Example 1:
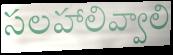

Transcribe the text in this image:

సలహాలివ్వాలి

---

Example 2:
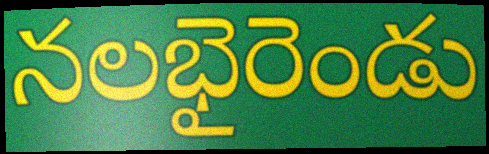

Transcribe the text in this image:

నలభైరెండు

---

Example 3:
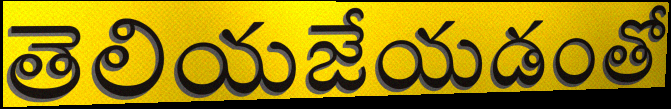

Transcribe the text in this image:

తెలియజేయడంతో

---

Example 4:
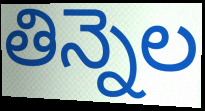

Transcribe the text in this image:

తిన్నెల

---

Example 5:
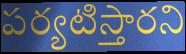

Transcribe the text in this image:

పర్యటిస్తారని